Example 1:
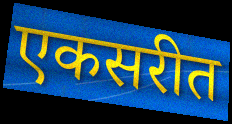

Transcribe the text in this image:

एकसरीत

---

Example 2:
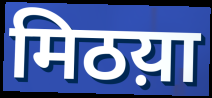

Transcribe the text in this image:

मिठय़ा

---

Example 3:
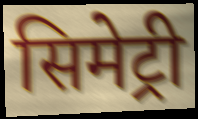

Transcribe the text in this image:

सिमेट्री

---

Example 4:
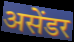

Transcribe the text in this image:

असेंडर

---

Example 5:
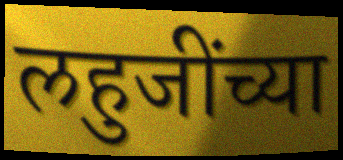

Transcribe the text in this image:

लहुजींच्या